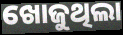
ଖୋଜୁଥିଲା